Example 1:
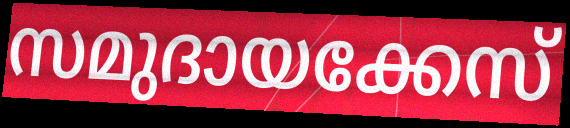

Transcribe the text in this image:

സമുദായക്കേസ്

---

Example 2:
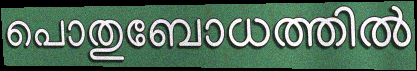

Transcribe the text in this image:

പൊതുബോധത്തിൽ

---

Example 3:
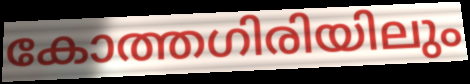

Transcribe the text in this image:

കോത്തഗിരിയിലും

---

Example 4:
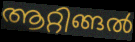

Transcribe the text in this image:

ആറ്റിങ്ങൽ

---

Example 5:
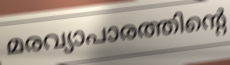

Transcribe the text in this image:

മരവ്യാപാരത്തിന്റെ